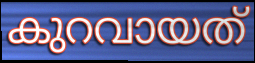
കുറവായത്